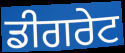
ਡੀਗਰੇਟ